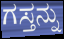
ಗಸ್ತನ್ನು